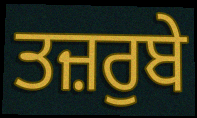
ਤਜ਼ਰੁਬੇ